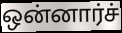
ஒன்னார்ச்